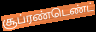
சூப்ரண்டெண்ட்